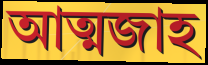
আত্মজাহ